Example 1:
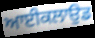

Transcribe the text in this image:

ਆਈਕਲਾਉਡ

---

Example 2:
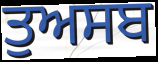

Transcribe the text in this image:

ਤੁਅਸਬ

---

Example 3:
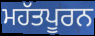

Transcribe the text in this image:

ਮਹੱਤਪੂਰਨ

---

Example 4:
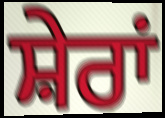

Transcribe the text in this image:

ਸ਼ੇਰਾਂ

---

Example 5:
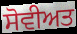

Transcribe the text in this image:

ਸੋਵੀਅਤ